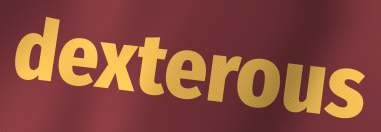
dexterous